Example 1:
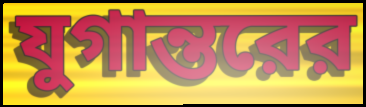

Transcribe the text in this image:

যুগান্তরের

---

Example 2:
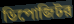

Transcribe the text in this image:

ডিপোজিটর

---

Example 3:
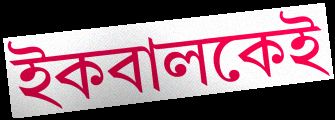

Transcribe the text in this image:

ইকবালকেই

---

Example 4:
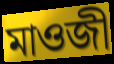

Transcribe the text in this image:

মাওজী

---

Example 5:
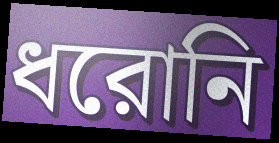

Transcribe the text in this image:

ধরোনি